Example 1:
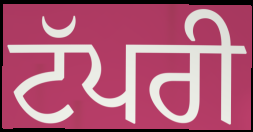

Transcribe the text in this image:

ਟੱਪਰੀ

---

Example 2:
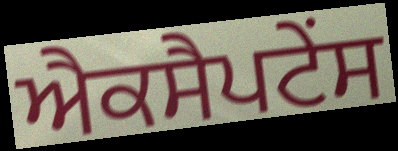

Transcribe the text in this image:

ਐਕਸੈਪਟੇਂਸ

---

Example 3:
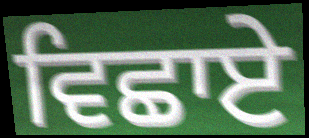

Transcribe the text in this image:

ਵਿਛਾਏ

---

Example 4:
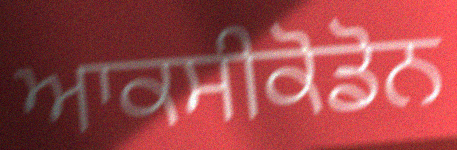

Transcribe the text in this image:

ਆਕਸੀਕੋਡੋਨ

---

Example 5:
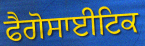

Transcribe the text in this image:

ਫੈਗੋਸਾਈਟਿਕ